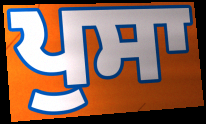
ਪੁਸਾ